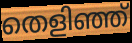
തെളിഞ്ഞ്